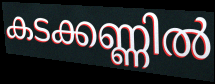
കടക്കണ്ണിൽ